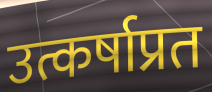
उत्कर्षाप्रत